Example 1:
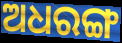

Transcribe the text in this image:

ଅଧରଙ୍ଗ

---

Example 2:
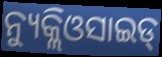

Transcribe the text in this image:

ନ୍ୟୁକ୍ଲିଓସାଇଡ୍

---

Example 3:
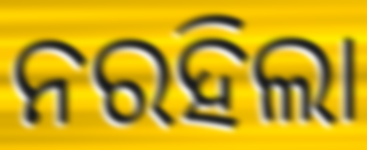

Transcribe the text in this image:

ନରହିଲା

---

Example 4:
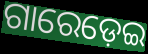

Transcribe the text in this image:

ଗାରେଡ଼େଇ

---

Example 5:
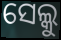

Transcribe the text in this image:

ସେଲ୍କୁ